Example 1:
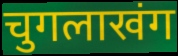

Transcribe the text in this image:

चुगलाखंग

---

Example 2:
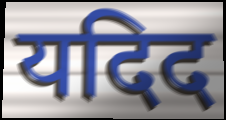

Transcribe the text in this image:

यदिद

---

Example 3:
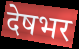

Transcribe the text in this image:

देषभर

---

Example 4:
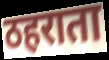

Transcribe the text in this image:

ठहराता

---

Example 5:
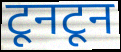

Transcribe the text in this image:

टूनटून